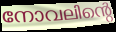
നോവലിന്റെ